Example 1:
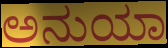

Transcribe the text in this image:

ಅನುಯಾ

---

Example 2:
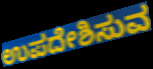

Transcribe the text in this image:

ಉಪದೇಶಿಸುವ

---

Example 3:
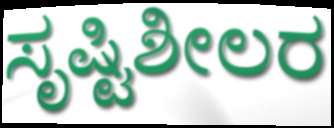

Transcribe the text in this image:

ಸೃಷ್ಟಿಶೀಲರ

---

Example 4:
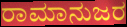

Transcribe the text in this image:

ರಾಮಾನುಜರ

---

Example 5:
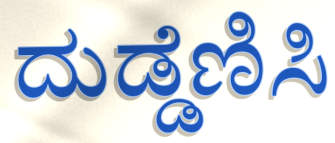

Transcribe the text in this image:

ದುಡ್ಡೆಣಿಸಿ